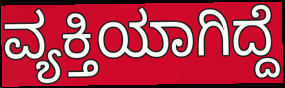
ವ್ಯಕ್ತಿಯಾಗಿದ್ದೆ